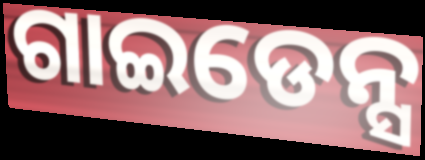
ଗାଇଡେନ୍ସ